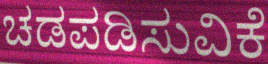
ಚಡಪಡಿಸುವಿಕೆ